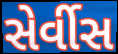
સેર્વીસ